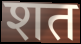
शत